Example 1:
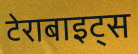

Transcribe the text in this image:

टेराबाइट्स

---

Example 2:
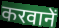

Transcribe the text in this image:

करवानें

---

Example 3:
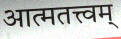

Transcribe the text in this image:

आत्मतत्त्वम्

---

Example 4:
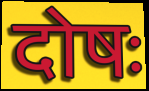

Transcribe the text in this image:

दोषः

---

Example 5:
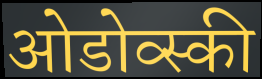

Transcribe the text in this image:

ओडोव्स्की